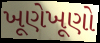
ખૂણેખૂણો